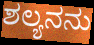
ಶಲ್ಯನನು